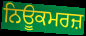
ਨਿਊਕਮਰਜ਼